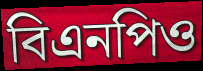
বিএনপিও